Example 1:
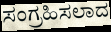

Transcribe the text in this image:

ಸಂಗ್ರಹಿಸಲಾದ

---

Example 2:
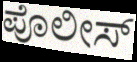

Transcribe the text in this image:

ಪೊಲೀಸ್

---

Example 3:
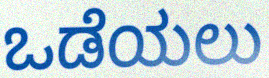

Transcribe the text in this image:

ಒಡೆಯಲು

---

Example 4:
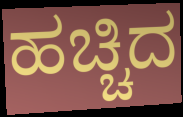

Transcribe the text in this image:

ಹಚ್ಚಿದ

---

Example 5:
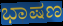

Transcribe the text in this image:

ಭಾಷಣ